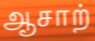
ஆசாற்